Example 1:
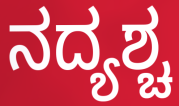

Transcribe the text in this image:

ನದ್ಯಶ್ಚ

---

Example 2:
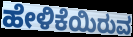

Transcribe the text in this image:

ಹೇಳಿಕೆಯಿರುವ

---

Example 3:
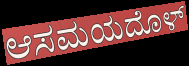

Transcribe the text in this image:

ಆಸಮಯದೊಳ್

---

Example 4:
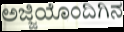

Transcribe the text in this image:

ಅಜ್ಜಿಯೊಂದಿಗಿನ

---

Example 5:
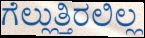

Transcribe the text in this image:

ಗೆಲ್ಲುತ್ತಿರಲಿಲ್ಲ